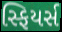
સ્ફિયર્સ